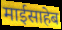
माईसाहेब